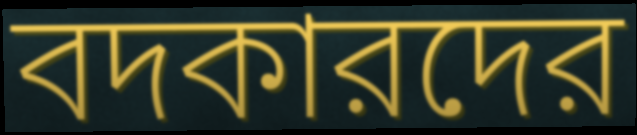
বদকারদের